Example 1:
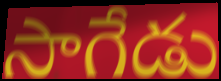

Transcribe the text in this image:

సాగేడు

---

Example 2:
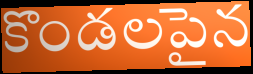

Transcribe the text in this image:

కొండలపైన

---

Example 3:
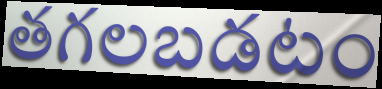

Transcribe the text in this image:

తగలబడటం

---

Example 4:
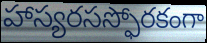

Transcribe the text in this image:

హాస్యరసస్ఫోరకంగా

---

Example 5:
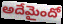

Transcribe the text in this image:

అదేమైందో